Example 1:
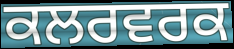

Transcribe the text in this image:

ਕਲਰਵਰਕ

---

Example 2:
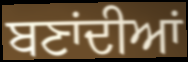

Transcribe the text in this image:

ਬਣਾਂਦੀਆਂ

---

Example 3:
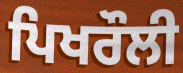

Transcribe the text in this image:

ਪਿਖਰੌਲੀ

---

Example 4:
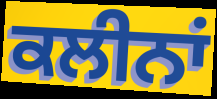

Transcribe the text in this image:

ਕਲੀਨਾਂ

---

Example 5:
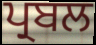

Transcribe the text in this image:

ਪ੍ਰਬਲ